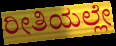
ರೀತಿಯಲ್ಲೇ